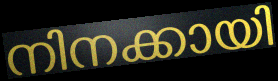
നിനക്കായി